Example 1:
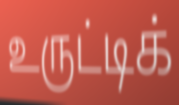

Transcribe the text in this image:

உருட்டிக்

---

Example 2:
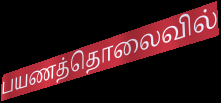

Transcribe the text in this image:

பயணத்தொலைவில்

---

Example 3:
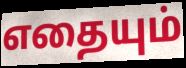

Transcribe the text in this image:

எதையும்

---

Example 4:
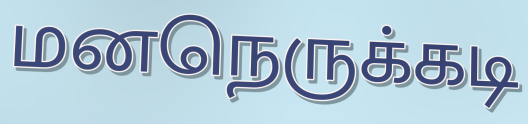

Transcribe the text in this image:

மனநெருக்கடி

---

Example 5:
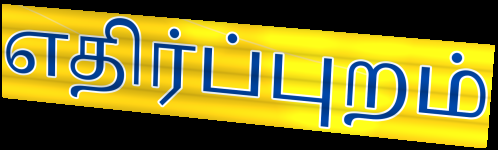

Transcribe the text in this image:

எதிர்ப்புறம்